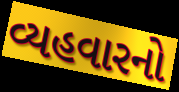
વ્યહવારનો